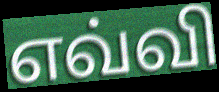
எவ்வி